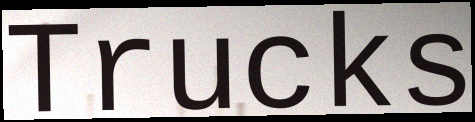
Trucks